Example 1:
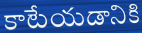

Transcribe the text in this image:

కాటేయడానికి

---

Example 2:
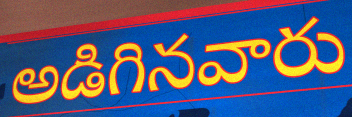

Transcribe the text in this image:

అడిగినవారు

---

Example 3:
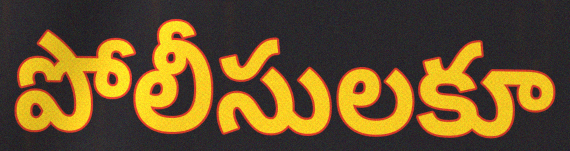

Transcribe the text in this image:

పోలీసులకూ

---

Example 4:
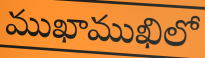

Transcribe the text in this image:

ముఖాముఖిలో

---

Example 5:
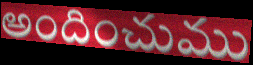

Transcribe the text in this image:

అందించుము